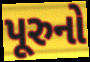
પૂરુનો